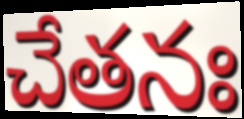
చేతనః